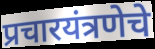
प्रचारयंत्रणेचे